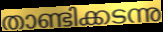
താണ്ടിക്കടന്നു